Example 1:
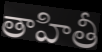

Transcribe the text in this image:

తాహితీ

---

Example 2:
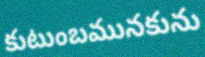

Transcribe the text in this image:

కుటుంబమునకును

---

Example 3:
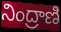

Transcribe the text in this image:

నింద్రాణి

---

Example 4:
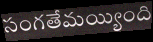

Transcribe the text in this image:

సంగతేమయ్యింది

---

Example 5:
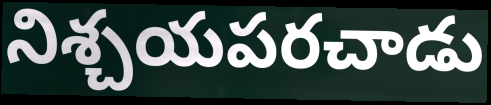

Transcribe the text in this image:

నిశ్చయపరచాడు